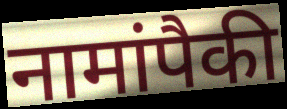
नामांपैकी